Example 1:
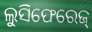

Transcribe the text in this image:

ଲୁସିଫେରେଜ୍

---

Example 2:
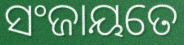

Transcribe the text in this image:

ସଂଜାୟତେ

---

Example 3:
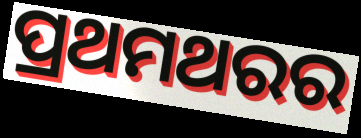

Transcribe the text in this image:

ପ୍ରଥମଥରର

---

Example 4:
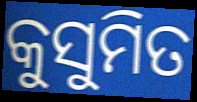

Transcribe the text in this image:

କୁସୁମିତ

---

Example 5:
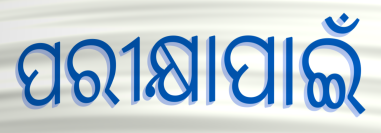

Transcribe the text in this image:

ପରୀକ୍ଷାପାଇଁ